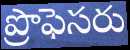
ప్రొఫెసరు